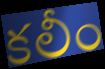
కలీం